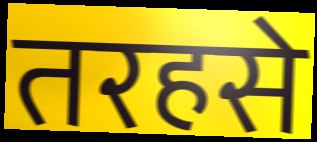
तरहसे